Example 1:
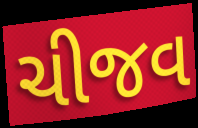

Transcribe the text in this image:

ચીજવ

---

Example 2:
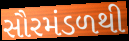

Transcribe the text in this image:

સૌરમંડળથી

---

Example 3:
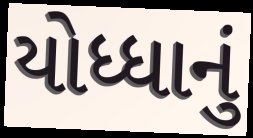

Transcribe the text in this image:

યોધ્ધાનું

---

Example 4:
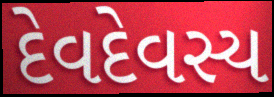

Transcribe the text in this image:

દેવદેવસ્ય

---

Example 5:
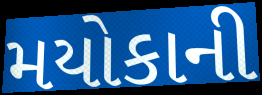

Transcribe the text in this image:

મયોકાની